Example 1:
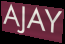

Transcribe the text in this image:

AJAY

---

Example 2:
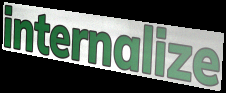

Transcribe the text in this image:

internalize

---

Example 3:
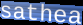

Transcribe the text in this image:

sathea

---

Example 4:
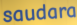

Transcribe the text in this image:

saudara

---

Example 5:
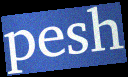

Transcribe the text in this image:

pesh